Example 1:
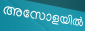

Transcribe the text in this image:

അസോളയിൽ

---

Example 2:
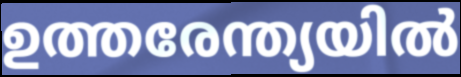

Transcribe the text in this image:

ഉത്തരേന്ത്യയിൽ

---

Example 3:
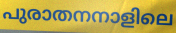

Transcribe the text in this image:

പുരാതനനാളിലെ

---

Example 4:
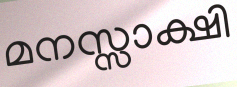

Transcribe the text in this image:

മനസ്സാക്ഷി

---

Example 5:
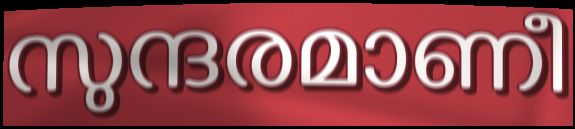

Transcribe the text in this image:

സുന്ദരമാണീ